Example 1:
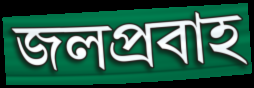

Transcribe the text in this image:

জলপ্ৰবাহ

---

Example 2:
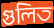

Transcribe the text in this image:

গুলিত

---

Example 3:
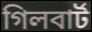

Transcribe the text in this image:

গিলবাৰ্ট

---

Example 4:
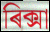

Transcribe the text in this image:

ৰিক্সা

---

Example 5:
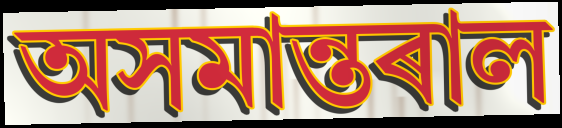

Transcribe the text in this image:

অসমান্তৰাল